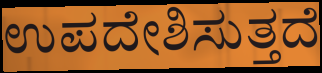
ಉಪದೇಶಿಸುತ್ತದೆ